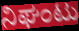
ನಿಘಂಟು